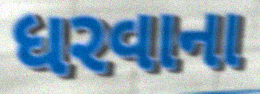
ધરવાના